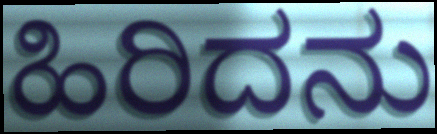
ಹಿರಿದನು